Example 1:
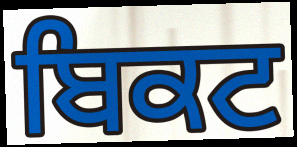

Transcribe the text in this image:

ਬਿਕਟ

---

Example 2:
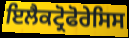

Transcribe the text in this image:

ਇਲੈਕਟ੍ਰੋਫੋਰੇਸਿਸ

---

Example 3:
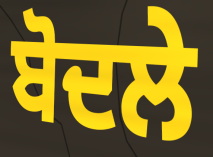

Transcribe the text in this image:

ਬੋਦਲੇ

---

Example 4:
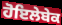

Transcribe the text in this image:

ਹੋਇਲੇਬੇਕ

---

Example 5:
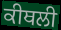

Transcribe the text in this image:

ਕੀਥਲੀ